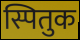
स्पितुक